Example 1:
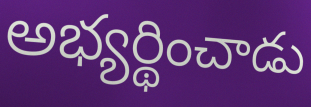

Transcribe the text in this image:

అభ్యర్థించాడు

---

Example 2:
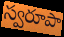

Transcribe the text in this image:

స్వరూపా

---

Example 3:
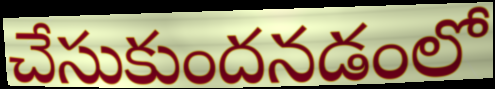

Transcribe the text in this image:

చేసుకుందనడంలో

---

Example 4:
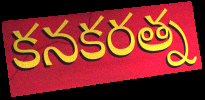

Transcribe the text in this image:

కనకరత్న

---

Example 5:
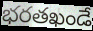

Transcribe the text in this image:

భరతఖండే